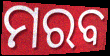
ମରବ